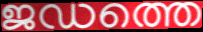
ജഡത്തെ